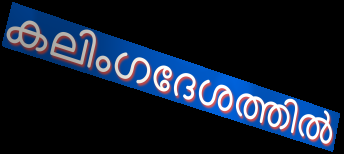
കലിംഗദേശത്തിൽ